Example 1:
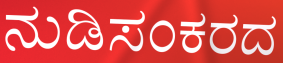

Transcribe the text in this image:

ನುಡಿಸಂಕರದ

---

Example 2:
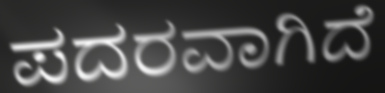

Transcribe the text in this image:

ಪದರವಾಗಿದೆ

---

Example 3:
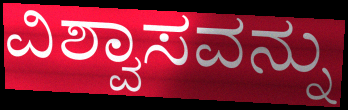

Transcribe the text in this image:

ವಿಶ್ವಾಸವನ್ನು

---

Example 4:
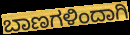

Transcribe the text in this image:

ಬಾಣಗಳಿಂದಾಗಿ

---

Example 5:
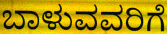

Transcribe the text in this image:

ಬಾಳುವವರಿಗೆ